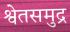
श्वेतसमुद्र